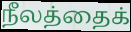
நீலத்தைக்